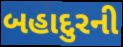
બહાદુરની